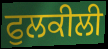
ਫੁਲਕੀਲੀ